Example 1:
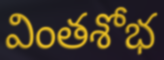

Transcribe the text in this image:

వింతశోభ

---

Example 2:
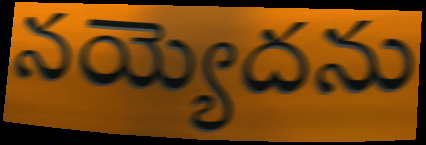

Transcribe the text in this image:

నయ్యెదను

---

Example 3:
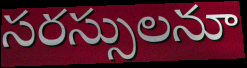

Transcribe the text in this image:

సరస్సులనూ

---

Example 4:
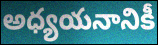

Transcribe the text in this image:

అధ్యయనానికీ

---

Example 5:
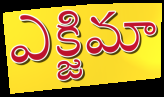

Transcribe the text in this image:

ఎక్జిమా